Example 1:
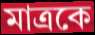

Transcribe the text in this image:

মাত্ৰকে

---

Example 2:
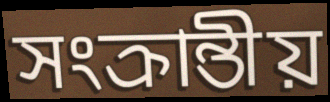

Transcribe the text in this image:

সংক্ৰান্তীয়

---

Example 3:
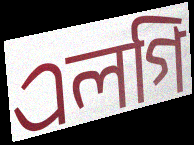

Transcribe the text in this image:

এলগি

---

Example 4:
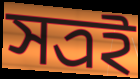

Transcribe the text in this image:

সত্ৰই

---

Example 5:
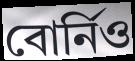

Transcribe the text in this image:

বোৰ্নিও